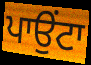
ਪਾਉੰਟਾ